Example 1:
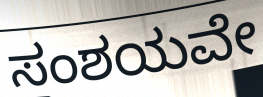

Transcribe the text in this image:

ಸಂಶಯವೇ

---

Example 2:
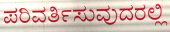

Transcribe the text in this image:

ಪರಿವರ್ತಿಸುವುದರಲ್ಲಿ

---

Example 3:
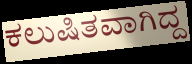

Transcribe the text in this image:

ಕಲುಷಿತವಾಗಿದ್ದ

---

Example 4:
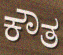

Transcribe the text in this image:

ಕೌತ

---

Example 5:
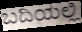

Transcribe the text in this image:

ಬದಿಯಲ್ಲಿ